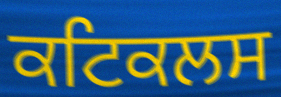
ਕਟਿਕਲਸ